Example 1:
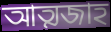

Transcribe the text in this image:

আত্মজাহ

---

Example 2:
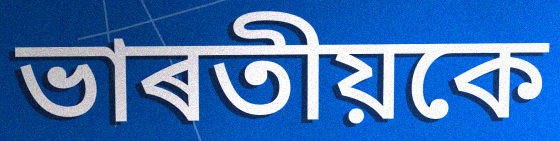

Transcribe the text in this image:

ভাৰতীয়কে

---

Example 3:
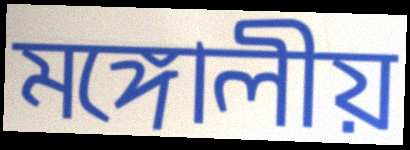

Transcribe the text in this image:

মঙ্গোলীয়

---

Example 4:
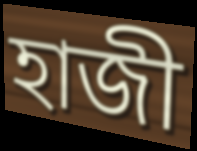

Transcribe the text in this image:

হাজী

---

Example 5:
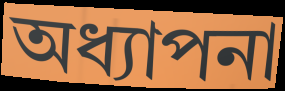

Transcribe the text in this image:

অধ্যাপনা